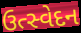
ઉત્સ્વેદન